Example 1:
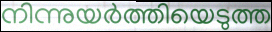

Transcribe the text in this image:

നിന്നുയർത്തിയെടുത്ത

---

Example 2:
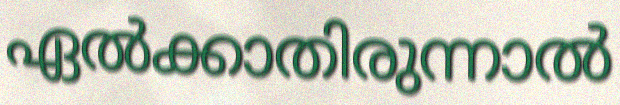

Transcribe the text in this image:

ഏൽക്കാതിരുന്നാൽ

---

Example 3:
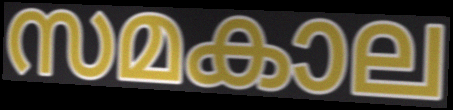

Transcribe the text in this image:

സമകാല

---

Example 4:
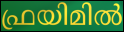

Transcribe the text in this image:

ഫ്രയിമിൽ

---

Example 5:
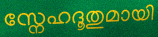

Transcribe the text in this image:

സ്നേഹദൂതുമായി